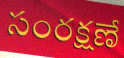
సంరక్షణే